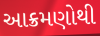
આક્રમણોથી